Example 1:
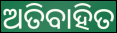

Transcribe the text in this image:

ଅତିବାହିତ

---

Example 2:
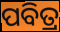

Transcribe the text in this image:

ପବିତ୍ର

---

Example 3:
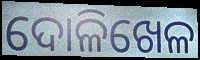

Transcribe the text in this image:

ଦୋଳିଖେଳ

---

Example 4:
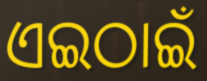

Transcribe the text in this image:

ଏଇଠାଇଁ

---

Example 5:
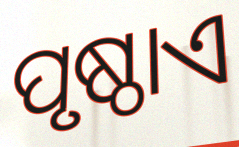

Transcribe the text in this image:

ପୃଷ୍ଠାଏ